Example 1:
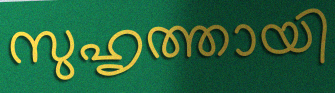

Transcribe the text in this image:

സുഹൃത്തായി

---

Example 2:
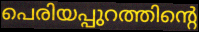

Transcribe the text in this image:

പെരിയപ്പുറത്തിന്റെ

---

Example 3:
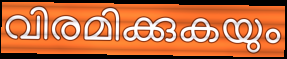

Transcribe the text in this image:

വിരമിക്കുകയും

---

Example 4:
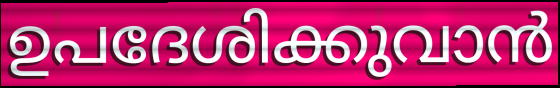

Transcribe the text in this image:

ഉപദേശിക്കുവാൻ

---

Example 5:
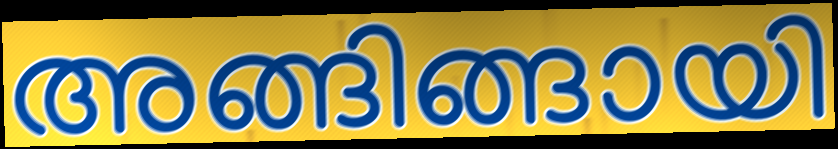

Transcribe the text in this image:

അങ്ങിങ്ങായി